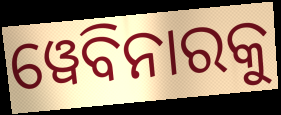
ୱେବିନାରକୁ